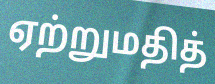
ஏற்றுமதித்